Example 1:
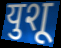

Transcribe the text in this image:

युशू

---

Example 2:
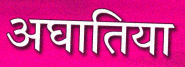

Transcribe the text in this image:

अघातिया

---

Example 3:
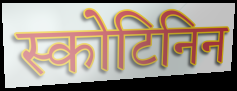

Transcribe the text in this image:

स्कोटिनिन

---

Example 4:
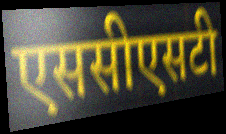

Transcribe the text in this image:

एससीएसटी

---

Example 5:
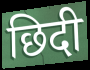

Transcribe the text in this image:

छिदी